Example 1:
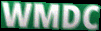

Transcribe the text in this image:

WMDC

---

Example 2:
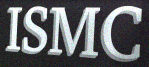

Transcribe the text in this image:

ISMC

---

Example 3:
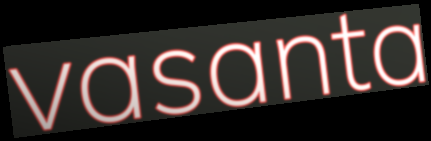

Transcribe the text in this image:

vasanta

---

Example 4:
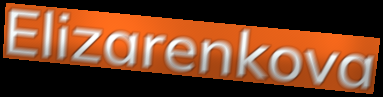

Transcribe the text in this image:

Elizarenkova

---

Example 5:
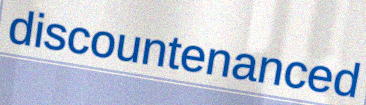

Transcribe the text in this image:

discountenanced